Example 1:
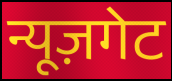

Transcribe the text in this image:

न्यूज़गेट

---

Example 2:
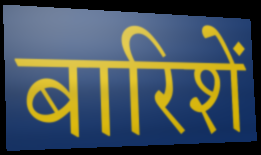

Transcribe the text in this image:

बारिशें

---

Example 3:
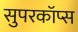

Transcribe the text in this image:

सुपरकॉप्स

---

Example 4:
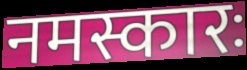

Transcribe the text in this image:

नमस्कारः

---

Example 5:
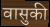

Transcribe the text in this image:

वासुकी